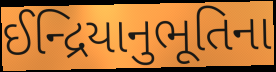
ઈન્દ્રિયાનુભૂતિના